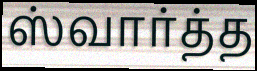
ஸ்வார்த்த